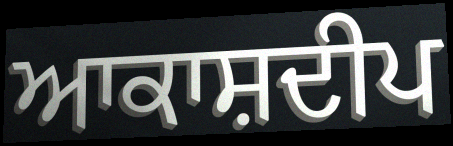
ਆਕਾਸ਼ਦੀਪ